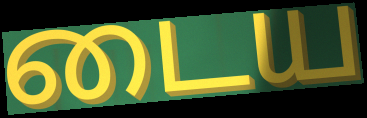
டைய